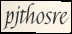
pjthosre